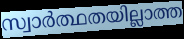
സ്വാർത്ഥതയില്ലാത്ത